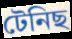
টেনিছ